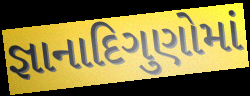
જ્ઞાનાદિગુણોમાં